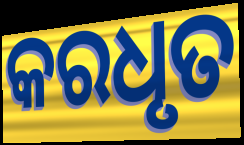
କରଧୃତ